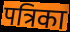
पत्रिका